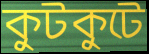
কুটকুটে